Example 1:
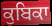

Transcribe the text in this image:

ਕੁਬਿਕਾ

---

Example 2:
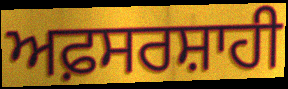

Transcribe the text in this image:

ਅਫ਼ਸਰਸ਼ਾਹੀ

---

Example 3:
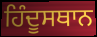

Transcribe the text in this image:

ਹਿੰਦੂਸਥਾਨ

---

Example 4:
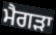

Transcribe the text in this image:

ਮੈਗੜਾ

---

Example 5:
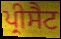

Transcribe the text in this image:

ਪ੍ਰੀਸੈਟ